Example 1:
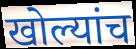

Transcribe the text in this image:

खोल्यांच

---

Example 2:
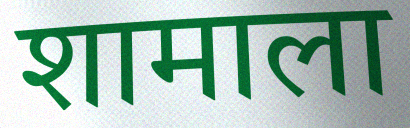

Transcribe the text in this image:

शामाला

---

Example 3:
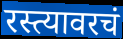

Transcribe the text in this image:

रस्त्यावरचं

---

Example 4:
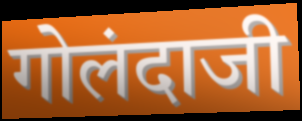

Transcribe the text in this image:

गोलंदाजी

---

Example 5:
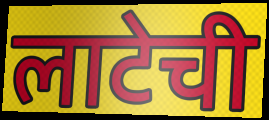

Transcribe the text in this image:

लाटेची